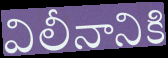
విలీనానికి